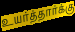
உயர்த்தார்க்கு